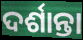
ଦର୍ଶାନ୍ତା